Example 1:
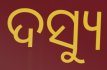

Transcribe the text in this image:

ଦସ୍ୟୁ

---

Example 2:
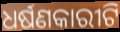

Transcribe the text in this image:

ଧର୍ଷଣକାରୀଟି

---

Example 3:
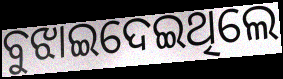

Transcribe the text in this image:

ବୁଝାଇଦେଇଥିଲେ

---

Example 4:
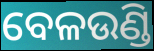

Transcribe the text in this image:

ବେଳଉଣ୍ଡି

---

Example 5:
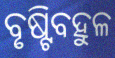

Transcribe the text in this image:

ବୃଷ୍ଟିବହୁଳ